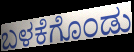
ಬಳಕೆಗೊಂಡು